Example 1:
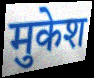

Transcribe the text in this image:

मुकेश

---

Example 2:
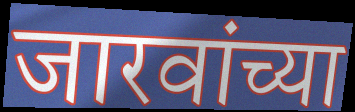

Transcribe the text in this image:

जारवांच्या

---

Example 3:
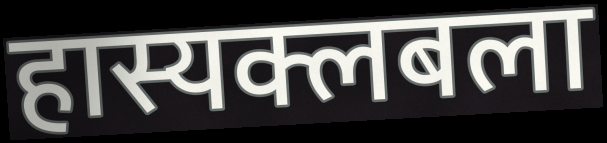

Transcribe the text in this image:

हास्यक्लबला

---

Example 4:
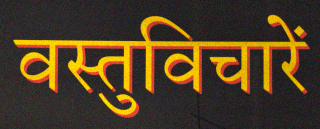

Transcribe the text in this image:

वस्तुविचारें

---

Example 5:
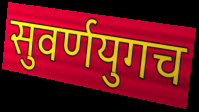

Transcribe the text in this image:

सुवर्णयुगच